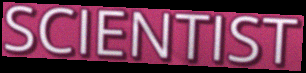
SCIENTIST